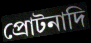
প্রোটনাদি